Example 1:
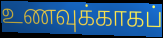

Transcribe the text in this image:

உணவுக்காகப்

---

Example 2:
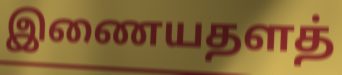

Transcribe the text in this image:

இணையதளத்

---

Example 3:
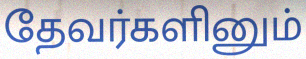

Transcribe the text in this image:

தேவர்களினும்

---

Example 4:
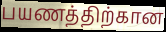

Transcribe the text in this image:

பயணத்திற்கான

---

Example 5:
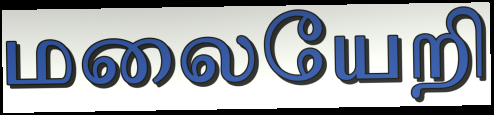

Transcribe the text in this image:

மலையேறி